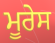
ਮੂਰੇਸ